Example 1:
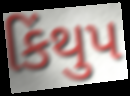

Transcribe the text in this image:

કિંથુપ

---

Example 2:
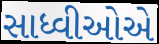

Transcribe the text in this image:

સાધ્વીઓએ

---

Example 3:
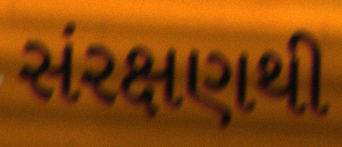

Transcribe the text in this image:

સંરક્ષણથી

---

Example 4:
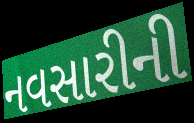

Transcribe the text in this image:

નવસારીની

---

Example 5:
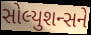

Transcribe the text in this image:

સોલ્યુશન્સને